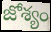
జోశ్యం